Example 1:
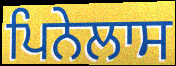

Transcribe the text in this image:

ਪਿਨੇਲਾਸ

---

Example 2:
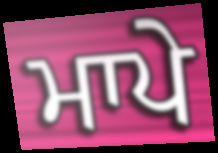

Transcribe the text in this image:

ਮਾਪੇ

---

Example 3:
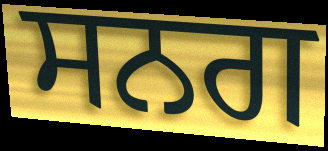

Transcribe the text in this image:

ਸਨਗ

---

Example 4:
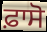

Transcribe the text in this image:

ਫ਼ਾਸੋ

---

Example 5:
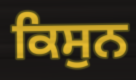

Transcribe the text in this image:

ਕਿਸੁਨ